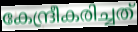
കേന്ദ്രീകരിച്ചത്